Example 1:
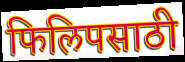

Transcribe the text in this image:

फिलिपसाठी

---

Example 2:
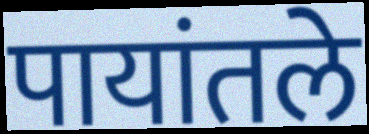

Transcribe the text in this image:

पायांतले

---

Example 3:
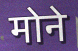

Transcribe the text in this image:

मोने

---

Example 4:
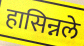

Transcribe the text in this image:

हासिन्नले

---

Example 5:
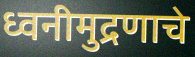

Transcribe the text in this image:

ध्वनीमुद्रणाचे